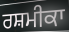
ਰਸ਼ਮੀਕਾ